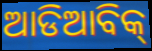
ଆଡିଆବିକ୍